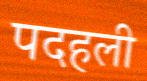
पदहली